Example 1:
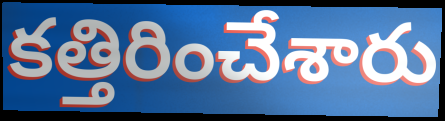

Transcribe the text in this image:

కత్తిరించేశారు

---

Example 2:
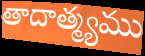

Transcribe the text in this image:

తాదాత్మ్యము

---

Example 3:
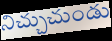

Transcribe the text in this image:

నిచ్చుచుండు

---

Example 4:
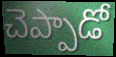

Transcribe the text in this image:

చెప్పాడో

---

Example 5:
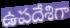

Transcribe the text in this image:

ఉపదేశిగా